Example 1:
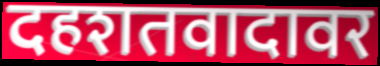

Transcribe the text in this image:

दहशतवादावर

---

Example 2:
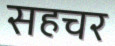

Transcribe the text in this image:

सहचर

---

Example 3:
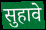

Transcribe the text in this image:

सुहावे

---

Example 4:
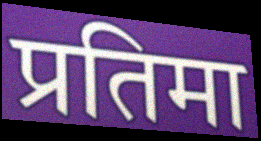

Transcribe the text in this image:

प्रतिमा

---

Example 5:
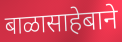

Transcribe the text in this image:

बाळासाहेबाने